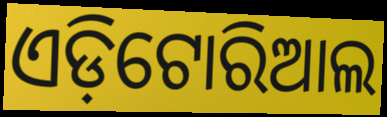
ଏଡ଼ିଟୋରିଆଲ